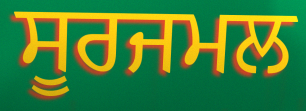
ਸੂਰਜਮਲ